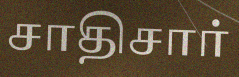
சாதிசார்